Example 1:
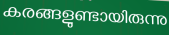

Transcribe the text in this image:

കരങ്ങളുണ്ടായിരുന്നു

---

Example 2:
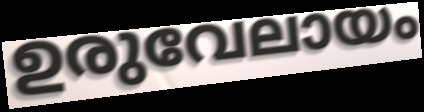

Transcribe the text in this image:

ഉരുവേലായം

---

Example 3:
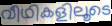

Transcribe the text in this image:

വീഥികളിലൂടെ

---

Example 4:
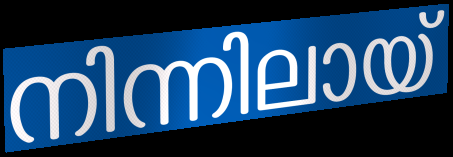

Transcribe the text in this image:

നിന്നിലായ്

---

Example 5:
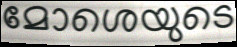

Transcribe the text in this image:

മോശെയുടെ